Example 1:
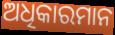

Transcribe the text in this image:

ଅଧିକାରମାନ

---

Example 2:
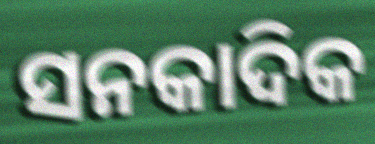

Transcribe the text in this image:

ସନକାଦିକ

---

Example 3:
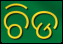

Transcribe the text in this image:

ଚିଡ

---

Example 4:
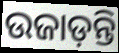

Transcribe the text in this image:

ଉଜାଡ଼ନ୍ତି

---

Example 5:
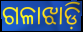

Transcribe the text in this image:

ଗଳାଝାଡ଼ି